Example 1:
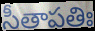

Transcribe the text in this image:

సీతాపతిః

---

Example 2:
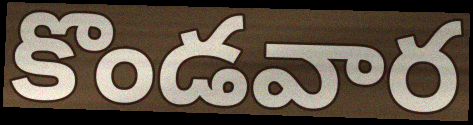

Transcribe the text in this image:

కొండవార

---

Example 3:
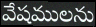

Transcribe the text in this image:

వేషములను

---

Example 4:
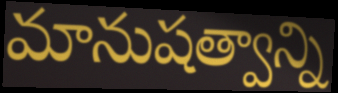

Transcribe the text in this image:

మానుషత్వాన్ని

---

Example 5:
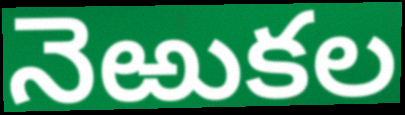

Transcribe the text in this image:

నెఱుకల